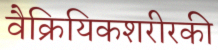
वैक्रियिकशरीरकी